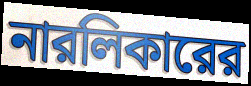
নারলিকারের